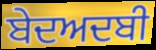
ਬੇਦਅਦਬੀ